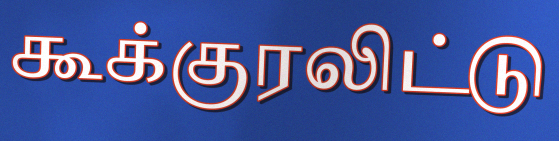
கூக்குரலிட்டு